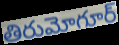
తిరుమోగూర్